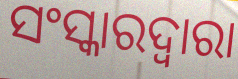
ସଂସ୍କାରଦ୍ୱାରା